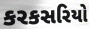
કરકસરિયો